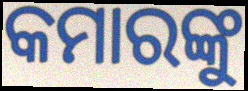
କମାରଙ୍କୁ